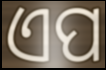
ଏପ